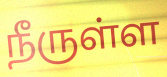
நீருள்ள